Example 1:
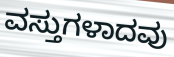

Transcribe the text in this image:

ವಸ್ತುಗಳಾದವು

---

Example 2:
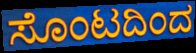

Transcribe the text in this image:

ಸೊಂಟದಿಂದ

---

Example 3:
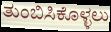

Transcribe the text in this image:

ತುಂಬಿಸಿಕೊಳ್ಳಲು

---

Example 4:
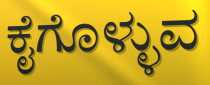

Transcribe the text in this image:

ಕೈಗೊಳ್ಳುವ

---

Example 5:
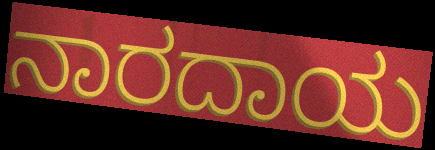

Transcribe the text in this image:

ನಾರದಾಯ